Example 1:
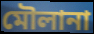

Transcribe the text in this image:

মৌলানা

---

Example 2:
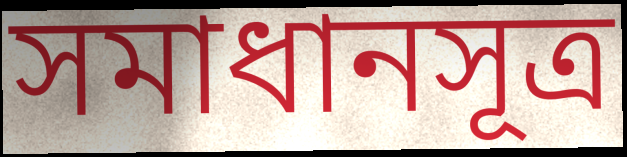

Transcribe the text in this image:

সমাধানসূত্ৰ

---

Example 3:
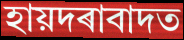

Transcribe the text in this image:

হায়দৰাবাদত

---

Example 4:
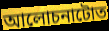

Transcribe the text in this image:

আলোচনাটোত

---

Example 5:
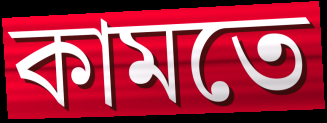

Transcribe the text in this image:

কামতে